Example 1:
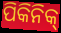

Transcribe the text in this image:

ପିକିନିକ୍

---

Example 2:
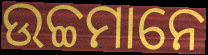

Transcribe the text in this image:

ଉଚ୍ଚମାନେ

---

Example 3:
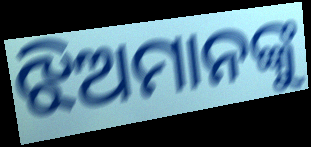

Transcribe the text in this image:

ଝିଅମାନଙ୍କୁ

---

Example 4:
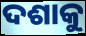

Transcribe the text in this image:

ଦଶାକୁ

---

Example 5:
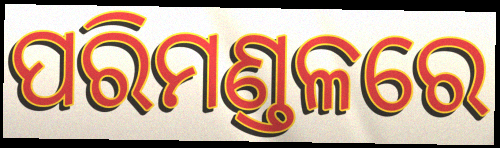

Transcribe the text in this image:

ପରିମଣ୍ଡଳରେ